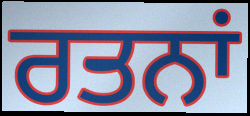
ਰਤਨਾਂ